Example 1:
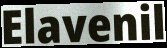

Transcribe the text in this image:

Elavenil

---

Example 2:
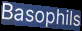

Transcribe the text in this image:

Basophils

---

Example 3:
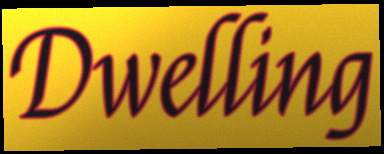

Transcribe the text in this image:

Dwelling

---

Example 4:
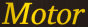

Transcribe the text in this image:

Motor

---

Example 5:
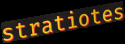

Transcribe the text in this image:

stratiotes